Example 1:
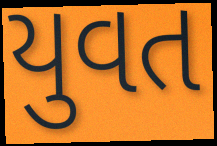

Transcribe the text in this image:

યુવત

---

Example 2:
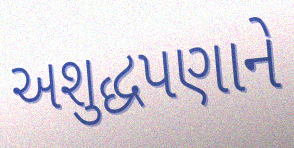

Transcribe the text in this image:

અશુદ્ધપણાને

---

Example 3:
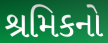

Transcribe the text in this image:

શ્રમિકનો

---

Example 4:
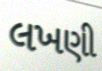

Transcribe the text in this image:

લખણી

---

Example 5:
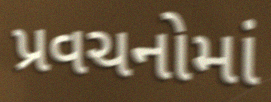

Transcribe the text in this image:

પ્રવચનોમાં